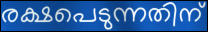
രക്ഷപെടുന്നതിന്